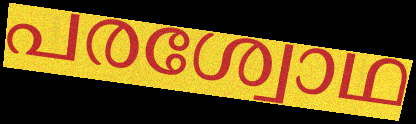
പരശ്വോഥ